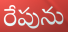
రేపును